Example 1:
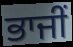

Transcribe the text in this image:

ਭਾਜੀਂ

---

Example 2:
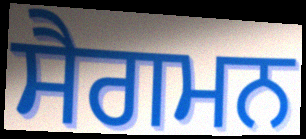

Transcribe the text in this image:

ਸੈਗਮਨ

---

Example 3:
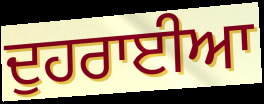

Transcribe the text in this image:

ਦੁਹਰਾਈਆ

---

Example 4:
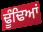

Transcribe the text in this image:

ਢੂੰਢਿਆਂ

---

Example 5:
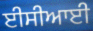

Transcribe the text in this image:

ਈਸੀਆਈ